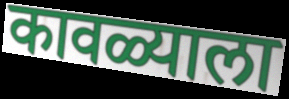
कावळ्याला